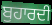
ਬੁਹਾਰਦੀ